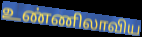
உண்ணிலாவிய